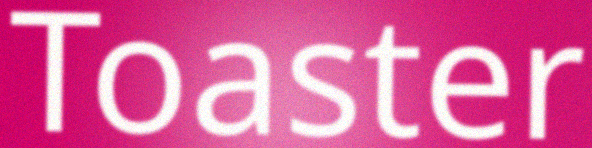
Toaster